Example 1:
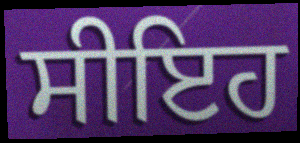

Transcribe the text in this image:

ਸੀਇਹ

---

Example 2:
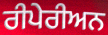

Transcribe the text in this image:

ਰੀਪੇਰੀਅਨ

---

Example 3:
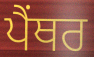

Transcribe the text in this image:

ਪੈੰਥਰ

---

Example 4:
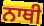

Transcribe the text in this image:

ਨਾਥੀ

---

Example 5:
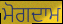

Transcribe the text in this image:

ਮੋਗਦਾਮ